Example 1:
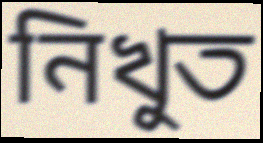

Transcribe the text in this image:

নিখুত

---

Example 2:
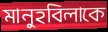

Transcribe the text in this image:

মানুহবিলাকে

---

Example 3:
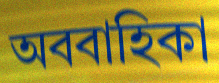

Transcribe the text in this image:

অববাহিকা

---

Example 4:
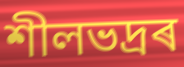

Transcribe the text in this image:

শীলভদ্ৰৰ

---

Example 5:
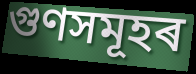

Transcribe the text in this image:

গুণসমূহৰ